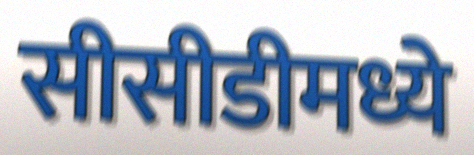
सीसीडीमध्ये